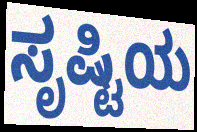
ಸೃಷ್ಟಿಯ